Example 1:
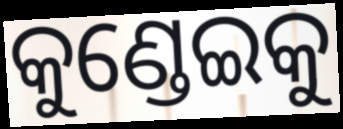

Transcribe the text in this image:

କୁଣ୍ଡେଇକୁ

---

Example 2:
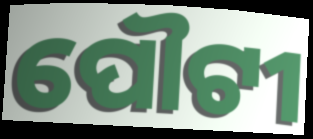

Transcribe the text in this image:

ପୌଟୀ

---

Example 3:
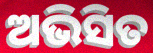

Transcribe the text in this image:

ଅଭିସିତ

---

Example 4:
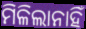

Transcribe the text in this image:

ମିଳିଲାନାହିଁ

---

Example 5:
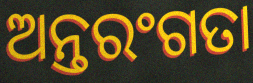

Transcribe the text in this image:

ଅନ୍ତରଂଗତା